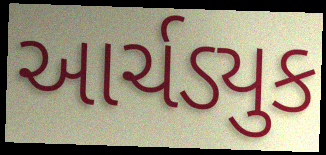
આર્ચડ્યુક